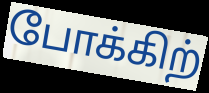
போக்கிற்